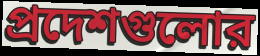
প্রদেশগুলোর